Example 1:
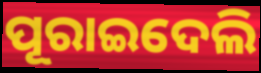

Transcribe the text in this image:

ପୂରାଇଦେଲି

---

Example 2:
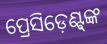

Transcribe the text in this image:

ପ୍ରେସିଡ଼େଣ୍ଟ୍‍ଙ୍କ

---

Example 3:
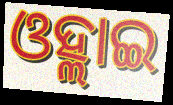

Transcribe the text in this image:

ଓହ୍ଲାଇ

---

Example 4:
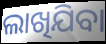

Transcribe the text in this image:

ଲାଖିଯିବା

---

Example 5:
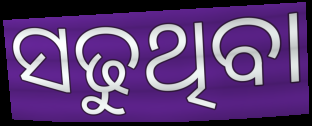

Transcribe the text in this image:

ସଢୁଥିବା